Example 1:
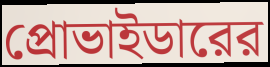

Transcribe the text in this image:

প্রোভাইডারের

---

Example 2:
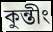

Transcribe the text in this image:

কুন্তীং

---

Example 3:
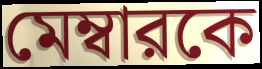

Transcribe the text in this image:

মেম্বারকে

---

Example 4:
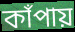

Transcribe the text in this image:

কাঁপায়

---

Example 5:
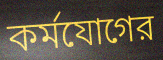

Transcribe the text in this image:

কর্মযোগের